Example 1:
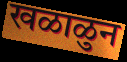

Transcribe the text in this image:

खळाळुन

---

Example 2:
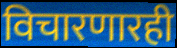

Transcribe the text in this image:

विचारणारही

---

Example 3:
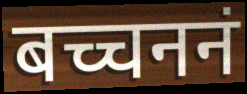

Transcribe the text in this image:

बच्चननं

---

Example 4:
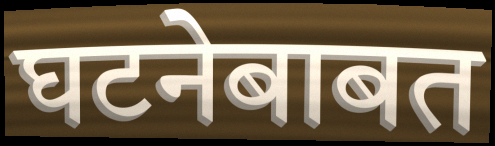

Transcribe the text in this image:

घटनेबाबत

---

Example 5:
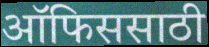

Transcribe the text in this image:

ऑफिससाठी